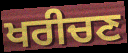
ਖਰੀਚਣ